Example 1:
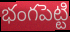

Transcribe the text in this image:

భంగపెట్టి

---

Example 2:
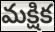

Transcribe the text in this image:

మక్షిక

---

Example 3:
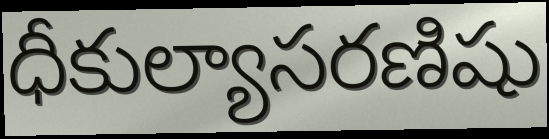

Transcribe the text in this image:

ధీకుల్యాసరణిషు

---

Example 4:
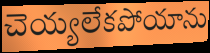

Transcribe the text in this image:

చెయ్యలేకపోయాను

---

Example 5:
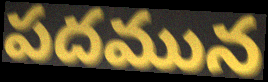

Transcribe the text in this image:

పదమున